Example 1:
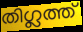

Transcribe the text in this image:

തിഗ്ലത്ത്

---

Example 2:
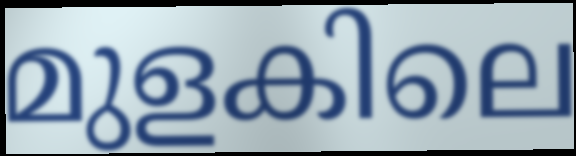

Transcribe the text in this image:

മുളകിലെ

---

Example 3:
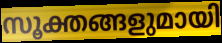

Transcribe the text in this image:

സൂക്തങ്ങളുമായി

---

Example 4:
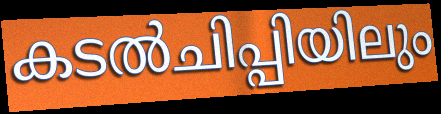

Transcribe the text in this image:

കടൽചിപ്പിയിലും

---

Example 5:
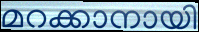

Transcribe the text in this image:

മറക്കാനായി